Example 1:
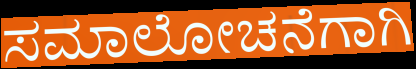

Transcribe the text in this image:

ಸಮಾಲೋಚನೆಗಾಗಿ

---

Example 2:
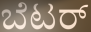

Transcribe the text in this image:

ಬೆಟರ್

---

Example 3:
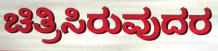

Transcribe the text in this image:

ಚಿತ್ರಿಸಿರುವುದರ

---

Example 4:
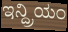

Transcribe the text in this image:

ಇನ್ದ್ರಿಯಂ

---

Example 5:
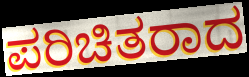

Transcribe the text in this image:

ಪರಿಚಿತರಾದ